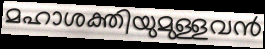
മഹാശക്തിയുമുള്ളവൻ